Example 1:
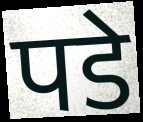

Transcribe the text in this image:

पडे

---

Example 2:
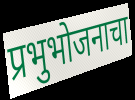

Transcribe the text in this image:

प्रभुभोजनाचा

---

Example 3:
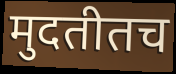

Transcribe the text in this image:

मुदतीतच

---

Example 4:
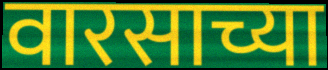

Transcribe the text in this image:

वारसाच्या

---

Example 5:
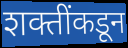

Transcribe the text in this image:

शक्तींकडून